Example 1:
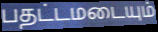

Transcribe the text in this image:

பதட்டமடையும்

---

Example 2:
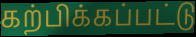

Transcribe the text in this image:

கற்பிக்கப்பட்டு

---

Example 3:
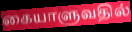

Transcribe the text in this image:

கையாளுவதில்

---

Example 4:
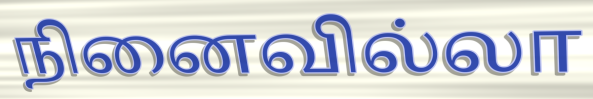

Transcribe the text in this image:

நினைவில்லா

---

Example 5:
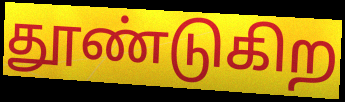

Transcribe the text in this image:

தூண்டுகிற